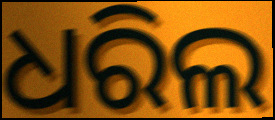
ଧରିଲ